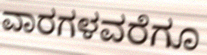
ವಾರಗಳವರೆಗೂ